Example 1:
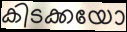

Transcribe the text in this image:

കിടക്കയോ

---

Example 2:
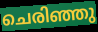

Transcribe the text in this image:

ചെരിഞ്ഞു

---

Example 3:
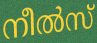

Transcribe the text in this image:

നീൽസ്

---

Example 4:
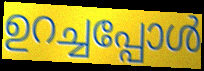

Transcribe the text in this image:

ഉറച്ചപ്പോൾ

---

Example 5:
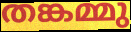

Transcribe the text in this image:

തങ്കമ്മു